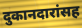
दुकानदारांसह